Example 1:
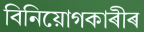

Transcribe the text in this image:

বিনিয়োগকাৰীৰ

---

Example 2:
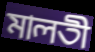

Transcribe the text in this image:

মালতী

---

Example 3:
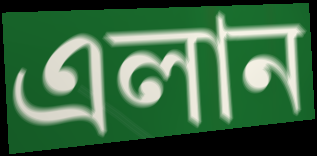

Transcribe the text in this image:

এলান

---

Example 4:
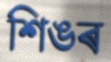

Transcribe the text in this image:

শিঙৰ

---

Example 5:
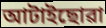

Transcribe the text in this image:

আটাইছোৱা